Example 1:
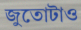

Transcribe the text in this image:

জুতোটাও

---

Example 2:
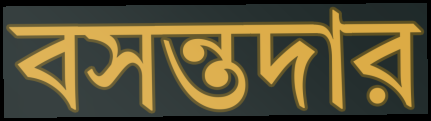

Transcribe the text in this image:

বসন্তদার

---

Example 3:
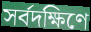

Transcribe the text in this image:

সর্বদক্ষিণে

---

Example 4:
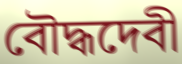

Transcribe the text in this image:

বৌদ্ধদেবী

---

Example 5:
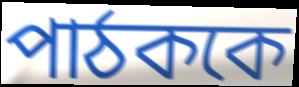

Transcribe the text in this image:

পাঠককে